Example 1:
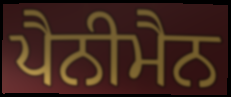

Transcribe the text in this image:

ਪੈਨੀਮੈਨ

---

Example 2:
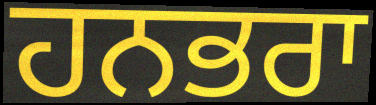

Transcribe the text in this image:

ਹਨਭਰਾ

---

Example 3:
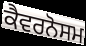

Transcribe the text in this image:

ਕੈਵਰਨੋਸਮ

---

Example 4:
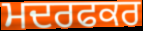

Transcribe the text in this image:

ਮਦਰਫਕਰ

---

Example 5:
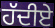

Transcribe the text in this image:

ਹੱਦੀਏ